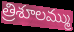
త్రిశూలమ్ము